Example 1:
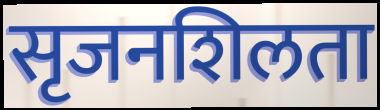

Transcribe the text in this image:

सृजनशिलता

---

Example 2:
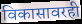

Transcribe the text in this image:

विकासावरही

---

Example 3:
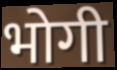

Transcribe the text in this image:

भोगी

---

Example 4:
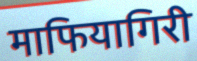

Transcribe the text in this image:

माफियागिरी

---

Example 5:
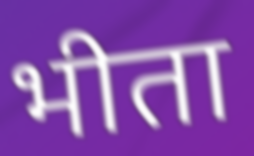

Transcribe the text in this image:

भीता